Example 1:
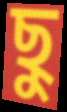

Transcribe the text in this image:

ছু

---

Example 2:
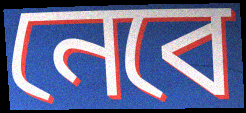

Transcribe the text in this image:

নেবে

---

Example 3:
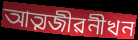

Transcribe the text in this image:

আত্মজীৱনীখন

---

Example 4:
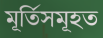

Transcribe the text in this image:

মূৰ্তিসমূহত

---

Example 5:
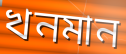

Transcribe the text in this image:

খনমান